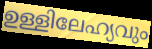
ഉള്ളിലേഹ്യവും